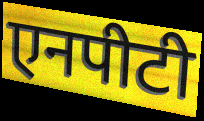
एनपीटी